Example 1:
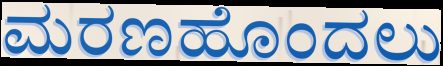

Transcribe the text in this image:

ಮರಣಹೊಂದಲು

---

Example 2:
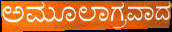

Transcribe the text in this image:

ಅಮೂಲಾಗ್ರವಾದ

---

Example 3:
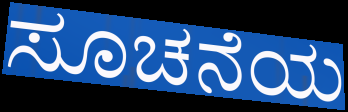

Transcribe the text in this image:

ಸೂಚನೆಯ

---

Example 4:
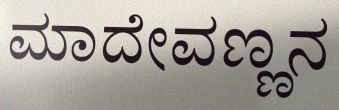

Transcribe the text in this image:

ಮಾದೇವಣ್ಣನ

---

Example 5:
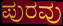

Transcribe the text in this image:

ಪುರವು